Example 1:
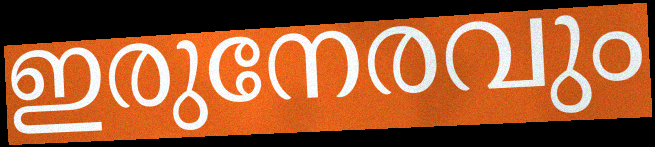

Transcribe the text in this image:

ഇരുനേരവും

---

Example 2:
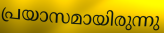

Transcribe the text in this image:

പ്രയാസമായിരുന്നു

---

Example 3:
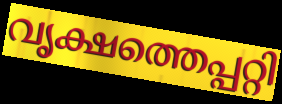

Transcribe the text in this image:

വൃക്ഷത്തെപ്പറ്റി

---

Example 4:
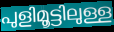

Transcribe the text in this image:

പുളിമൂട്ടിലുള്ള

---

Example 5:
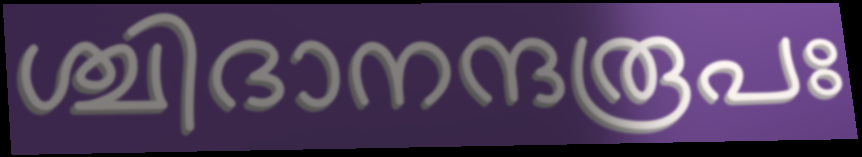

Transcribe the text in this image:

ശ്ചിദാനന്ദരൂപഃ